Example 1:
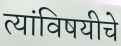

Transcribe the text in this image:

त्यांविषयीचे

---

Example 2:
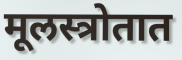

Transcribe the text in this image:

मूलस्त्रोतात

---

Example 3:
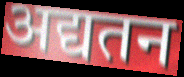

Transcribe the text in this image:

अद्यतन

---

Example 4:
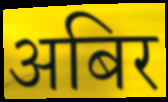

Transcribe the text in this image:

अबिर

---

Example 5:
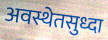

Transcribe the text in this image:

अवस्थेतसुध्दा